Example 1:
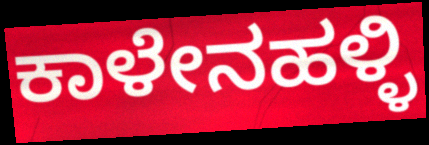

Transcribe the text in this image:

ಕಾಳೇನಹಳ್ಳಿ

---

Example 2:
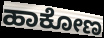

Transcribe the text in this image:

ಹಾಕೋಣ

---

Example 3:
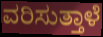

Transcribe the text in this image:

ವರಿಸುತ್ತಾಳೆ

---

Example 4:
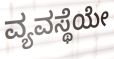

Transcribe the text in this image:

ವ್ಯವಸ್ಥೆಯೇ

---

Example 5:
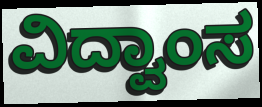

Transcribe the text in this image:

ವಿದ್ವಾಂಸ